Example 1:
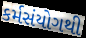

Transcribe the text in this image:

કર્મસંયોગથી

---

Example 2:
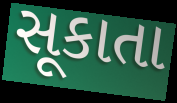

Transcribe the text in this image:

સૂકાતા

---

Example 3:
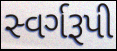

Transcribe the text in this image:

સ્વર્ગરૂપી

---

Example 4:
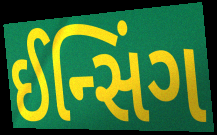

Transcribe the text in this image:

ઈન્સિંગ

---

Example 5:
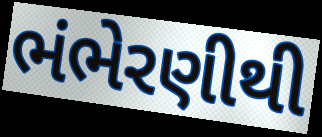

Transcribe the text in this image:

ભંભેરણીથી